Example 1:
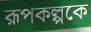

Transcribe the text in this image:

রূপকল্পকে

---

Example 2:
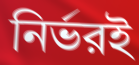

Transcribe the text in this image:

নির্ভরই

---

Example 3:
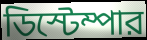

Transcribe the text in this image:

ডিস্টেম্পার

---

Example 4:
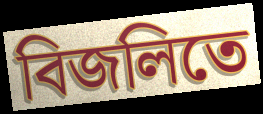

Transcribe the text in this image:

বিজলিতে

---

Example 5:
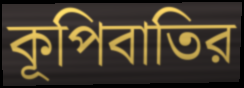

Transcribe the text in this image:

কূপিবাতির